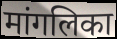
मांगलिका